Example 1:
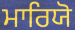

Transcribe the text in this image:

ਮਾਰਿਯੋ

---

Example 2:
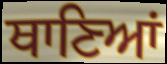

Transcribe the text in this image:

ਥਾਣਿਆਂ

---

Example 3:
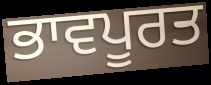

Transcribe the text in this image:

ਭਾਵਪੂਰਤ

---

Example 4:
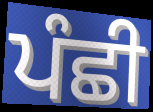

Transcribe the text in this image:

ਪੰਛੀ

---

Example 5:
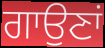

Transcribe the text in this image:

ਗਾਉਣਾਂ